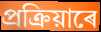
প্ৰক্ৰিয়াৰে